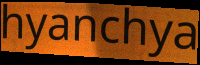
hyanchya